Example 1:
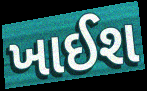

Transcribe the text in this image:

ખાઈશ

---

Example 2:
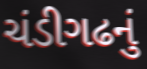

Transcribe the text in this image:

ચંડીગઢનું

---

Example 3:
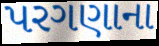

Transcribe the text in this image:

પરગણાના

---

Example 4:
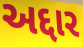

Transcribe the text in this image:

અદ્દાર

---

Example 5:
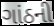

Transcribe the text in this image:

ગાંઠની